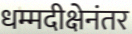
धम्मदीक्षेनंतर